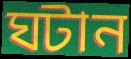
ঘটান